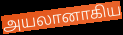
அயலானாகிய